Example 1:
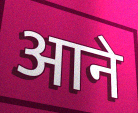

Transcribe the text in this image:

आने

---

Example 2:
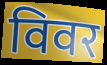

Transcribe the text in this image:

विवर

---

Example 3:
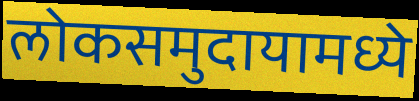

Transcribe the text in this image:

लोकसमुदायामध्ये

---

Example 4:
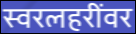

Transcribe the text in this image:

स्वरलहरींवर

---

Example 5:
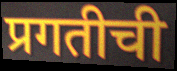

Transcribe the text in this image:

प्रगतीची